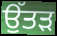
ਉੱਤੜ